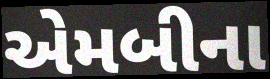
એમબીના